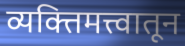
व्यक्तिमत्त्वातून